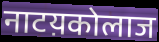
नाटय़कोलाज